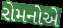
રોમનોએ